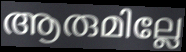
ആരുമില്ലേ